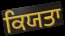
ਕਿਯਤਾ